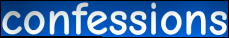
confessions